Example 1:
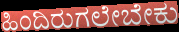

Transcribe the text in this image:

ಹಿಂದಿರುಗಲೇಬೇಕು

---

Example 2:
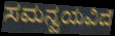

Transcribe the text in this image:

ಸಮನ್ವಯವಿದೆ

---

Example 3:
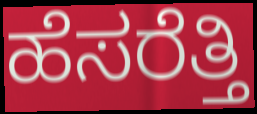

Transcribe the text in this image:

ಹೆಸರೆತ್ತಿ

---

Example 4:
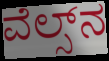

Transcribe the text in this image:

ವೆಲ್ಸ್‌ನ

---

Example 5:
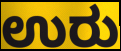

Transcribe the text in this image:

ಉರು